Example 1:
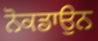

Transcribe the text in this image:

ਨੋਕਡਾਉਨ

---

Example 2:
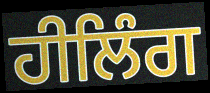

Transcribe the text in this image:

ਹੀਲਿੰਗ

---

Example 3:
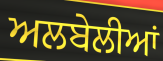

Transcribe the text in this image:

ਅਲਬੇਲੀਆਂ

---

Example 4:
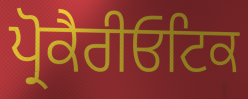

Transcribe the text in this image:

ਪ੍ਰੋਕੈਰੀਓਟਿਕ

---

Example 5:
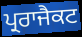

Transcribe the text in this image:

ਪ੍ਰਰਾਜੈਕਟ